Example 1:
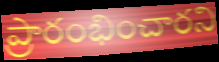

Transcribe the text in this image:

ప్రారంభించారని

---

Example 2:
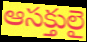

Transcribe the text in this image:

ఆసక్తులై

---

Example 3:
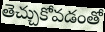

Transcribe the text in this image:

తెచ్చుకోవడంతో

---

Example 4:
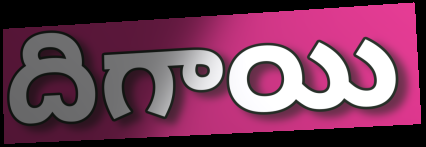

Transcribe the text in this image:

దిగాయి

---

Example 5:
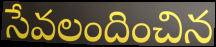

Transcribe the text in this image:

సేవలందించిన